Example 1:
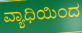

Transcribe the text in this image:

ವ್ಯಾಧಿಯಿಂದ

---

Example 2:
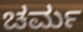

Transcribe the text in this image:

ಚರ್ಮ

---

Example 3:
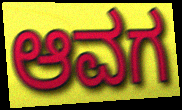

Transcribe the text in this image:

ಆವಗ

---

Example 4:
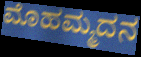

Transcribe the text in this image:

ಮೊಹಮ್ಮದನ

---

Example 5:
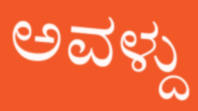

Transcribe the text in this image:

ಅವಳ್ದು